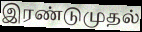
இரண்டுமுதல்